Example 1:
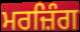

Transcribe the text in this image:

ਮਰਜ਼ਿੰਗ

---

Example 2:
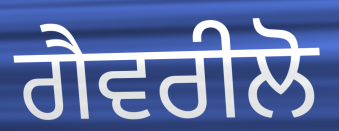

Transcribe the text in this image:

ਗੈਵਰੀਲੋ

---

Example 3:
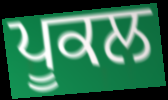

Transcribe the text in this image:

ਪੂਕਲ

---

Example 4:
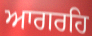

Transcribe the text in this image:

ਆਗਰਹਿ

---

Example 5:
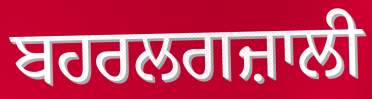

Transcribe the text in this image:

ਬਹਰਲਗਜ਼ਾਲੀ